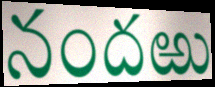
నందఱు